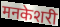
मनकेशरी